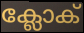
ക്ലോക്